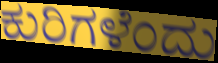
ಕುರಿಗಳೆಂದು